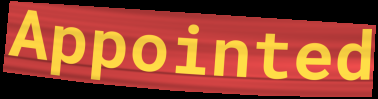
Appointed